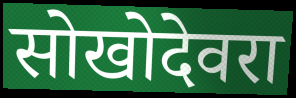
सोखोदेवरा